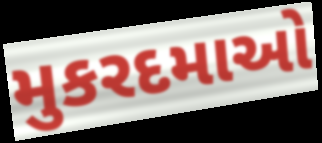
મુકરદમાઓ